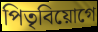
পিতৃবিয়োগে